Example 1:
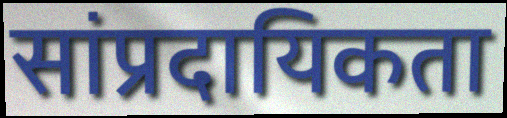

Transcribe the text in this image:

सांप्रदायिकता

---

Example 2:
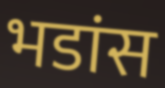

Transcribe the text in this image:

भडांस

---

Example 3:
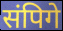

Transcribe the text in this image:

संपिगे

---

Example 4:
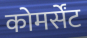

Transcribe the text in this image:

कोमर्सेंट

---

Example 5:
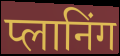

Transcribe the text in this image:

प्‍लानिंग